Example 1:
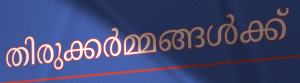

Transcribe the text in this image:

തിരുക്കർമ്മങ്ങൾക്ക്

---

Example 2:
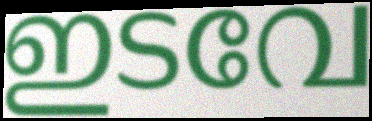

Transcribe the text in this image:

ഇടവേ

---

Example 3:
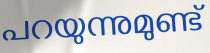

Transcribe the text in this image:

പറയുന്നുമുണ്ട്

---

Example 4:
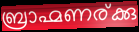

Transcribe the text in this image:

ബ്രാഹ്മണര്ക്കു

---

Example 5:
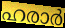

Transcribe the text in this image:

ഹരാർ